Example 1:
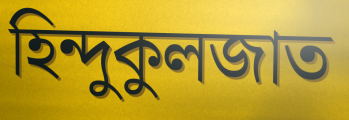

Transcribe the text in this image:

হিন্দুকুলজাত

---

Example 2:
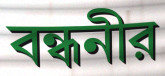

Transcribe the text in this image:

বন্ধনীর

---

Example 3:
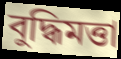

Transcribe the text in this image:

বুদ্ধিমত্তা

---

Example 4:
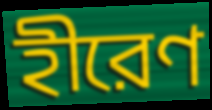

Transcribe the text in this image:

হীরেণ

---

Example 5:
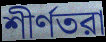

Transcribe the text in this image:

শীর্ণতরা